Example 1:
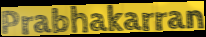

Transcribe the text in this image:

Prabhakarran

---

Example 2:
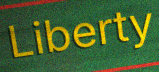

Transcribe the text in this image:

Liberty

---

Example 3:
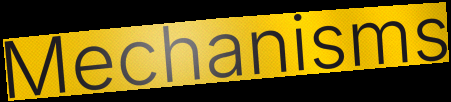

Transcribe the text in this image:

Mechanisms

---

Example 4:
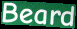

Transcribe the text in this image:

Beard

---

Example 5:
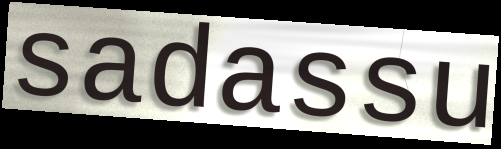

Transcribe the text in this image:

sadassu